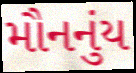
મૌનનુંય